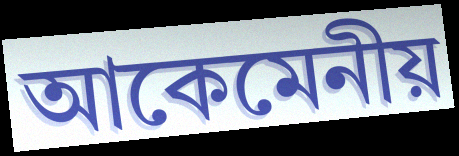
আকেমেনীয়